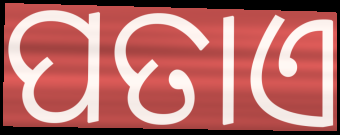
ପତାଏ